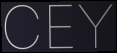
CEY